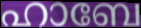
ഹാബേ